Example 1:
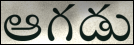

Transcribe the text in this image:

ఆగడు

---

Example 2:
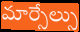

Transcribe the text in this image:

మార్సేల్సు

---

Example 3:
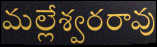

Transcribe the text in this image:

మల్లేశ్వరరావు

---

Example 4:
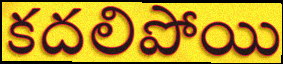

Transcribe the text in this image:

కదలిపోయి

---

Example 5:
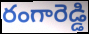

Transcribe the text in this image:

రంగారెడ్డి